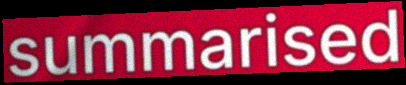
summarised